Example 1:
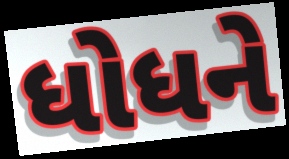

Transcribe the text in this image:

ધોધને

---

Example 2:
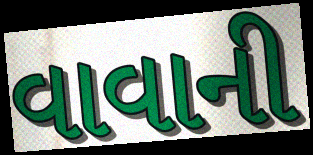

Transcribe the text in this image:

વાવાની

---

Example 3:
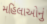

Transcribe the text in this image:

મહિલાઓનું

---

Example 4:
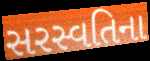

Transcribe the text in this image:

સરસ્વતિના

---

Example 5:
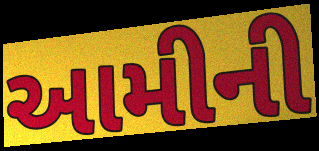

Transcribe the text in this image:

આમીની